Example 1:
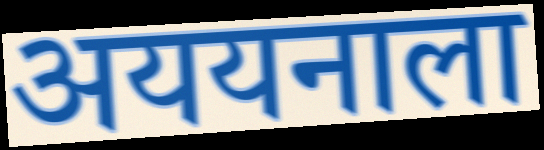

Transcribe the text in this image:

अययनाला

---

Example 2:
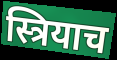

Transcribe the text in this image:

स्त्रियाच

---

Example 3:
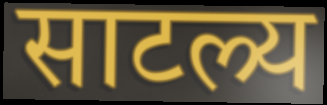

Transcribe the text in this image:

साटल्य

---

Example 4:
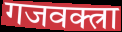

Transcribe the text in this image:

गजवक्त्रा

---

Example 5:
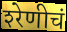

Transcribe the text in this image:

श्रेणीचं